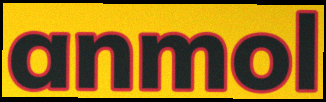
anmol